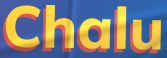
Chalu